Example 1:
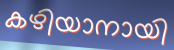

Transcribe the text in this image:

കഴിയാനായി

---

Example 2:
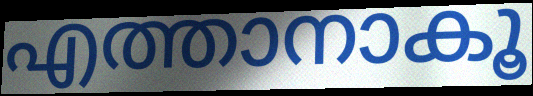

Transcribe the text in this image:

എത്താനാകൂ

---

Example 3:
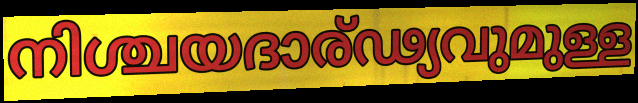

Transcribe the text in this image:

നിശ്ചയദാര്ഢ്യവുമുള്ള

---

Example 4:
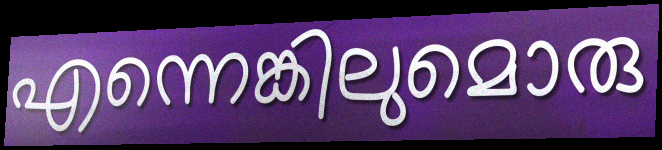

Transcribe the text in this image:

എന്നെങ്കിലുമൊരു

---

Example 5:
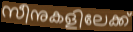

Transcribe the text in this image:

സീനുകളിലേക്ക്